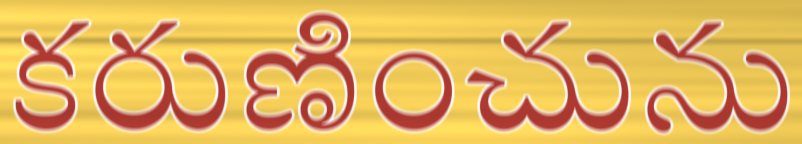
కరుణించును